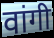
वांगी